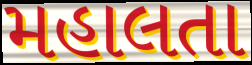
મહાલતા